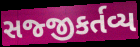
સજ્જીકર્તવ્ય